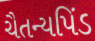
ચૈતન્યપિંડ